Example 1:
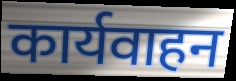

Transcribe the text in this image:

कार्यवाहन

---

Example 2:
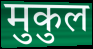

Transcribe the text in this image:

मुकुल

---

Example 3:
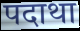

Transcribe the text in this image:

पदाथा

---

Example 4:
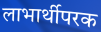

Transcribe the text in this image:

लाभार्थीपरक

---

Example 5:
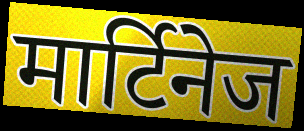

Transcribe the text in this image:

मार्टिनेज